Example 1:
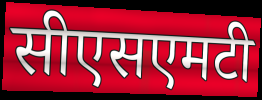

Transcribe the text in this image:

सीएसएमटी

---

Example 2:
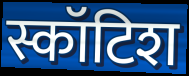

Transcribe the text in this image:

स्कॉटिश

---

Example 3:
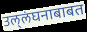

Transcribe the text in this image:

उल्लंघनाबाबत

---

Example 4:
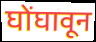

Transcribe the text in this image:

घोंघावून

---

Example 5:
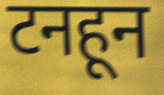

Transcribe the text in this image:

टनहून